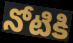
నోటికి